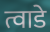
त्वाडे